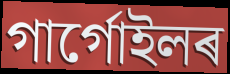
গাৰ্গোইলৰ